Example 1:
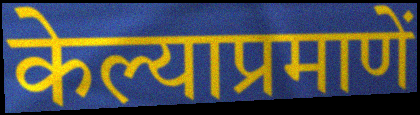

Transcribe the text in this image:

केल्याप्रमाणें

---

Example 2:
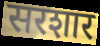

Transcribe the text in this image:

सरशार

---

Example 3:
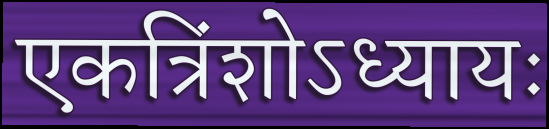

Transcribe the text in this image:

एकत्रिंशोऽध्यायः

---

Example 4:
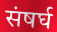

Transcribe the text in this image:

संषर्घ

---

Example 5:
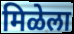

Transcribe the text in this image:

मिळेला